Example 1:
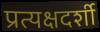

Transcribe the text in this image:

प्रत्यक्षदर्शी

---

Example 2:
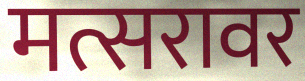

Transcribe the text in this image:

मत्सरावर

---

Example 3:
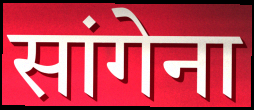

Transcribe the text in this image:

सांगेना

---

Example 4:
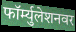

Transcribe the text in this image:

फॉर्म्युलेशनवर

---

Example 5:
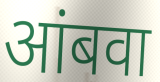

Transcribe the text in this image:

आंबवा